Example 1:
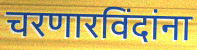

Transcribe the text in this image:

चरणारविंदांना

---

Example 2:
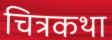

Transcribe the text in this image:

चित्रकथा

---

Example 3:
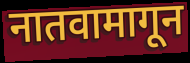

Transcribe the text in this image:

नातवामागून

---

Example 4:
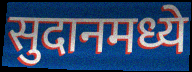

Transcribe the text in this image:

सुदानमध्ये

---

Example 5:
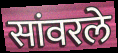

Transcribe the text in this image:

सांवरले